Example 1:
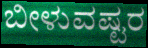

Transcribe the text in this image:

ಬೀಳುವಷ್ಟರ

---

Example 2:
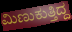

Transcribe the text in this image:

ಮಿಣುಕುತ್ತಿದ್ದ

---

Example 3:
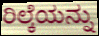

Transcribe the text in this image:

ರಿಲ್ಕೆಯನ್ನು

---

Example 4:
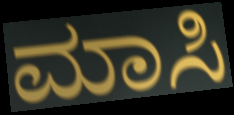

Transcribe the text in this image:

ಮಾಸಿ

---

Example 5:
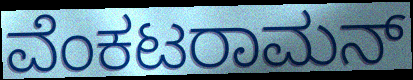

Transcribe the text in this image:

ವೆಂಕಟರಾಮನ್